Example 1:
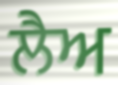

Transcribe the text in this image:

ਲੈਅ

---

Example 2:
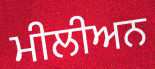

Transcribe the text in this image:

ਮੀਲੀਅਨ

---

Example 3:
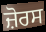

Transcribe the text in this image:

ਜ਼ੋਰਸ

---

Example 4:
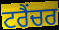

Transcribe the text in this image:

ਟਰੈਂਚਰ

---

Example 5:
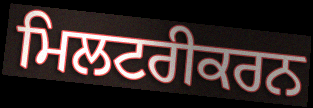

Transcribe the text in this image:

ਮਿਲਟਰੀਕਰਨ